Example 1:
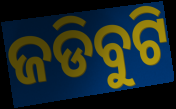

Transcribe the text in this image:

ଜଡିବୁଟି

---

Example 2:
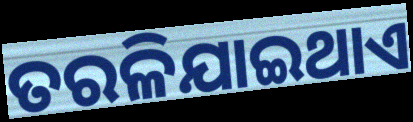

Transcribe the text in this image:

ତରଳିଯାଇଥାଏ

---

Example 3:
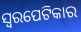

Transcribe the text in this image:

ସ୍ଵରପେଟିକାର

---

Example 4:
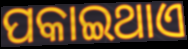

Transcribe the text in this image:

ପକାଇଥାଏ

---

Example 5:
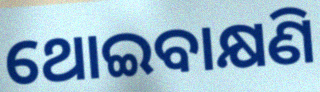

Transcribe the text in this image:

ଥୋଇବାକ୍ଷଣି